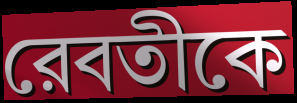
রেবতীকে